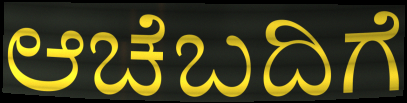
ಆಚೆಬದಿಗೆ